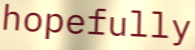
hopefully